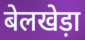
बेलखेड़ा